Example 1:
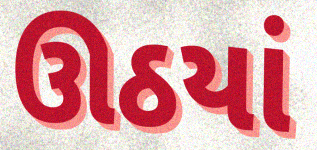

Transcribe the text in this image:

ઊઠયાં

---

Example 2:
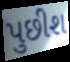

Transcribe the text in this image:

પુછીશ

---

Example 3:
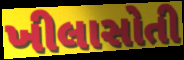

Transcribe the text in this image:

ખીલાસોતી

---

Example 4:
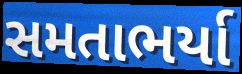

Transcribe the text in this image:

સમતાભર્યા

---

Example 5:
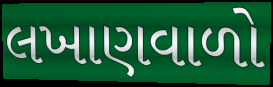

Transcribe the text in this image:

લખાણવાળો